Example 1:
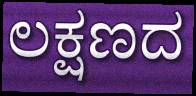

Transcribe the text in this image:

ಲಕ್ಷಣದ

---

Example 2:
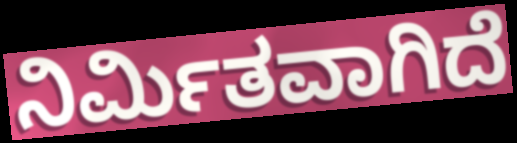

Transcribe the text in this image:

ನಿರ್ಮಿತವಾಗಿದೆ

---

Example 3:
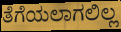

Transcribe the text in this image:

ತೆಗೆಯಲಾಗಲಿಲ್ಲ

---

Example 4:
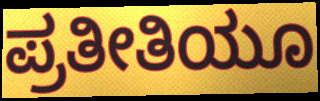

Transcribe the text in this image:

ಪ್ರತೀತಿಯೂ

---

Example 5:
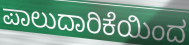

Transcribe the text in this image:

ಪಾಲುದಾರಿಕೆಯಿಂದ